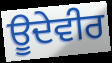
ਊਦੇਵੀਰ